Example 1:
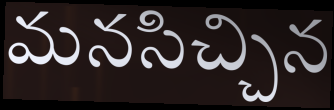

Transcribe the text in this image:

మనసిచ్చిన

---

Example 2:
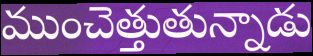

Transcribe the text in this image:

ముంచెత్తుతున్నాడు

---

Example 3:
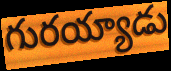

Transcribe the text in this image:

గురయ్యాడు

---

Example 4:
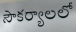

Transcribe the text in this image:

సౌకర్యాలలో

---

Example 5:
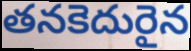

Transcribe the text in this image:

తనకెదురైన